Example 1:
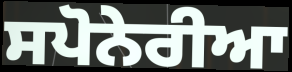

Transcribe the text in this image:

ਸਪੋਨੇਰੀਆ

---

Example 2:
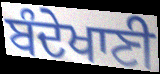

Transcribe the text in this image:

ਬੰਦੇਖਾਣੀ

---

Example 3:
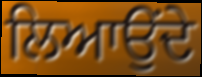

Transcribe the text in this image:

ਲਿਆਉੁਂਦੇ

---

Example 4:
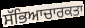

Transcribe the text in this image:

ਸੱਭਿਆਚਾਰਕਤਾ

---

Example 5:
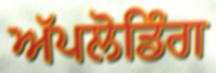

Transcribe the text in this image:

ਅੱਪਲੋਡਿੰਗ